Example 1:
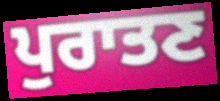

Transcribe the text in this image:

ਪੁਰਾਤਣ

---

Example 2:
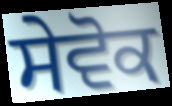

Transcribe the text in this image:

ਸੇਵੋਕ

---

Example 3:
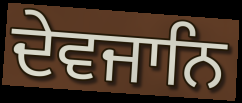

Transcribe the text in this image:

ਦੇਵਜਾਨਿ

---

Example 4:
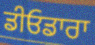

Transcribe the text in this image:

ਡੀਓਡਾਰਾ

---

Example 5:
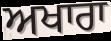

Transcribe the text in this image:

ਅਖਾਰਾ